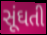
સૂંઘતી